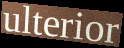
ulterior